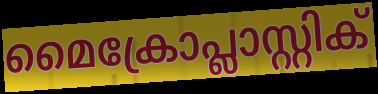
മൈക്രോപ്ലാസ്റ്റിക്